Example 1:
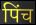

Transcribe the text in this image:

पिंच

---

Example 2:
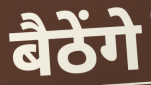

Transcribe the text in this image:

बैठेंगे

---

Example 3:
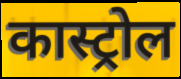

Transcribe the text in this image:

कास्ट्रोल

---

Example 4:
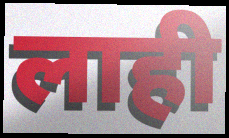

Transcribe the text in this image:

लाही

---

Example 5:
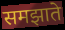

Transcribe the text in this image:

समझाते